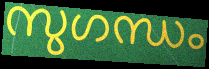
സുഗന്ധം